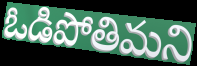
ఓడిపోతిమని